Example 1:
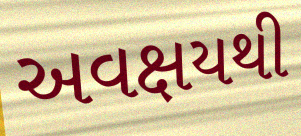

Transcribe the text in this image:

અવક્ષયથી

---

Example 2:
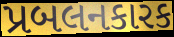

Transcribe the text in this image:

પ્રબલનકારક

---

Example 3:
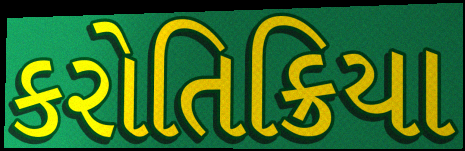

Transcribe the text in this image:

કરોતિક્રિયા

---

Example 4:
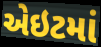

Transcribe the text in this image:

એઇટમાં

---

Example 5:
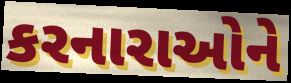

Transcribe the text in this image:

કરનારાઓને